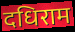
दधिराम